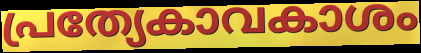
പ്രത്യേകാവകാശം